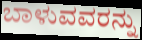
ಬಾಳುವವರನ್ನು